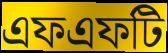
এফএফটি